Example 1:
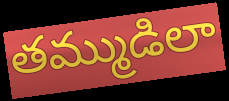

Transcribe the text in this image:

తమ్ముడిలా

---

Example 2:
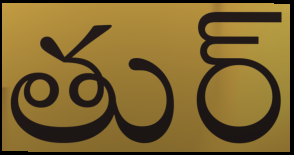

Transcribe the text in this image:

తుర్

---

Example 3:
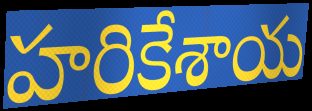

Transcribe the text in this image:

హరికేశాయ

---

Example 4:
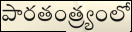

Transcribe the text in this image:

పారతంత్ర్యంలో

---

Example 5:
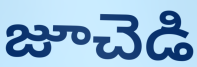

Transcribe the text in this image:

జూచెడి